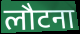
लौटना